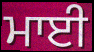
ਮਾਈ